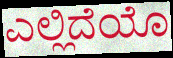
ಎಲ್ಲಿದೆಯೊ